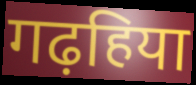
गढ़हिया